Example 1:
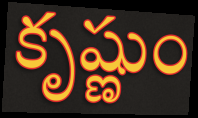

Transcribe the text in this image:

కృష్ణుం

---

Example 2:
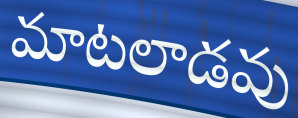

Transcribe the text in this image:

మాటలాడవు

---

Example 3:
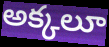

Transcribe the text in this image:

అక్కలూ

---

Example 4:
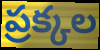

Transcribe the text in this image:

ప్రక్కల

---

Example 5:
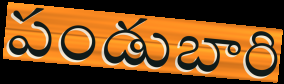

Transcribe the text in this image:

పండుబారి